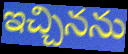
ఇచ్చినను